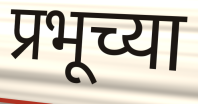
प्रभूच्या